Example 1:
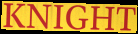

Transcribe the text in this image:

KNIGHT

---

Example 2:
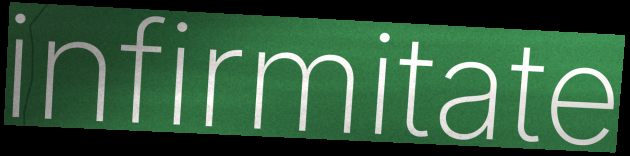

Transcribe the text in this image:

infirmitate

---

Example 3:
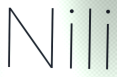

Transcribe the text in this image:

Nili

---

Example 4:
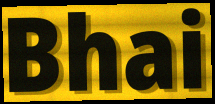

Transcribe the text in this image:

Bhai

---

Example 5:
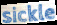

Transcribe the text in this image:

sickle